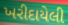
ખરીદાયેલી